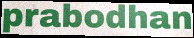
prabodhan